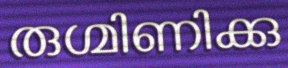
രുഗ്മിണിക്കു